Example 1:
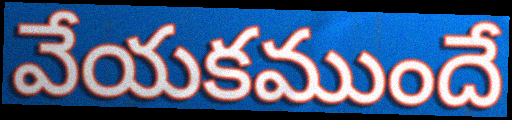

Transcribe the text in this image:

వేయకముందే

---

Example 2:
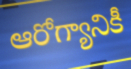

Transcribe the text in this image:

ఆరోగ్యానికీ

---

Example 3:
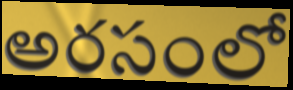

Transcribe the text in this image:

అరసంలో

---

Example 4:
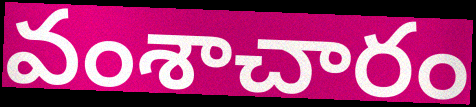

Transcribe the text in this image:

వంశాచారం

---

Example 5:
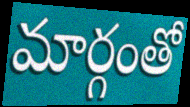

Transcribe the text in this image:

మార్గంతో